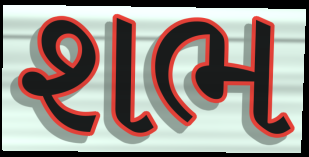
શભ